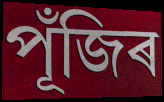
পূঁজিৰ